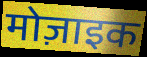
मोज़ाइक